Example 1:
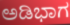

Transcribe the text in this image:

ಅಡಿಭಾಗ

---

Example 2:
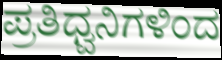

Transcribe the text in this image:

ಪ್ರತಿಧ್ವನಿಗಳಿಂದ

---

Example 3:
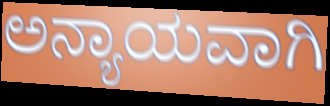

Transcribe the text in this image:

ಅನ್ಯಾಯವಾಗಿ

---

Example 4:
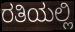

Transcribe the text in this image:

ರತಿಯಲ್ಲಿ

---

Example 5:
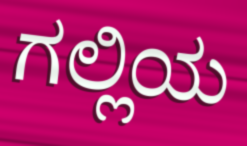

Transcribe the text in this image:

ಗಲ್ಲಿಯ